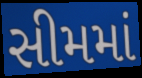
સીમમાં